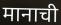
मानाची